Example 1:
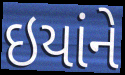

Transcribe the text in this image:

ઇયાંને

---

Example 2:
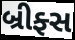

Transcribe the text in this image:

બ્રીફ્સ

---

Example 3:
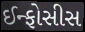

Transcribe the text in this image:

ઈન્ફોસીસ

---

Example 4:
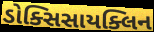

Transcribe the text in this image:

ડોક્સિસાયક્લિન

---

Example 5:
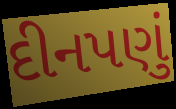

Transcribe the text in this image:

દીનપણું